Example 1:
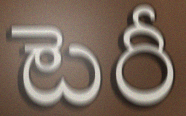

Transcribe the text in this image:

టెరీ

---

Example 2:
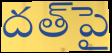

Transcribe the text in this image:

దత్‌పై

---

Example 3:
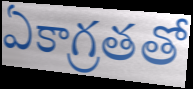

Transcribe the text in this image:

ఏకాగ్రతతో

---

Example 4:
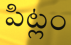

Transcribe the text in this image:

పిట్లం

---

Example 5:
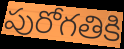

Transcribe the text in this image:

పురోగతికి